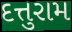
દત્તુરામ